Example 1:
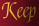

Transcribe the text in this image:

Keep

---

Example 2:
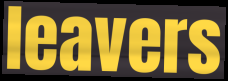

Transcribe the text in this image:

leavers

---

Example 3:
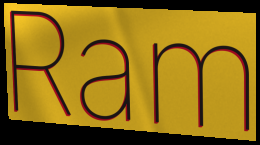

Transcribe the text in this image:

Ram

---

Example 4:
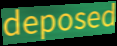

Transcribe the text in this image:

deposed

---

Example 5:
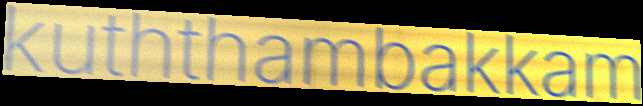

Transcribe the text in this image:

kuththambakkam